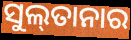
ସୁଲ୍‌ତାନାର